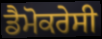
ਡੈਮੋਕਰੇਸੀ